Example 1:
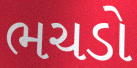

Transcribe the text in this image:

ભચડો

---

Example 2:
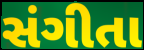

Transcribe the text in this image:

સંગીતા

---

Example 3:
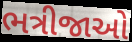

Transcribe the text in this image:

ભત્રીજાઓ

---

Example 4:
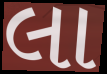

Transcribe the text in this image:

લા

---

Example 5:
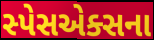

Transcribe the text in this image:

સ્પેસએક્સના